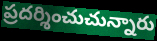
ప్రదర్శించుచున్నారు